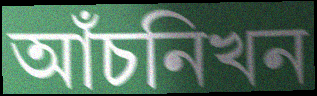
আঁচনিখন